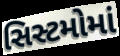
સિસ્ટમોમાં